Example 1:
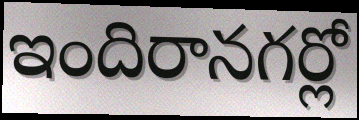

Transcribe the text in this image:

ఇందిరానగర్లో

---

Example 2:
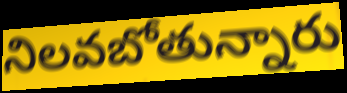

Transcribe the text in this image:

నిలవబోతున్నారు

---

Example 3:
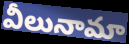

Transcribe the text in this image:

వీలునామా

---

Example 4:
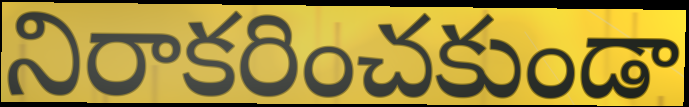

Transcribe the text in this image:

నిరాకరించకుండా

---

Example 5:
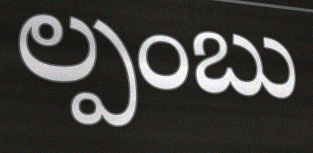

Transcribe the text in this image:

ల్పంబు